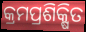
କ୍ରମପ୍ରଶିକ୍ଷିତ